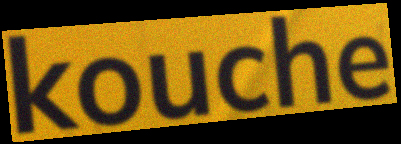
kouche